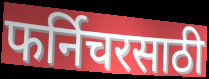
फर्निचरसाठी